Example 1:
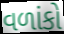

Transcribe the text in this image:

વળાંકો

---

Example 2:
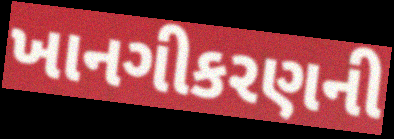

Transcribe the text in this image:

ખાનગીકરણની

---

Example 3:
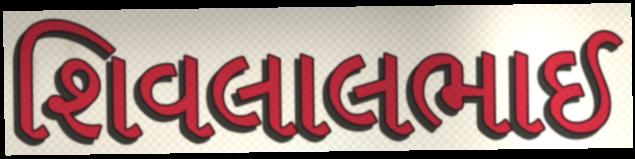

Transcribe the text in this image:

શિવલાલભાઈ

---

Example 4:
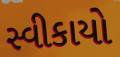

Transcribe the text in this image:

સ્વીકાયો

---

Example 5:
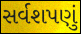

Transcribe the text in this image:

સર્વશપણું